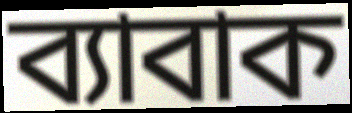
ব্যাবাক